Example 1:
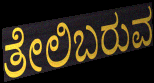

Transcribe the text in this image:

ತೇಲಿಬರುವ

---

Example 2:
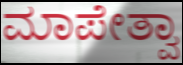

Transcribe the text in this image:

ಮಾಪೇತ್ವಾ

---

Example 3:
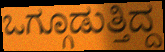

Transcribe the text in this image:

ಒಗ್ಗೂಡುತ್ತಿದ್ದ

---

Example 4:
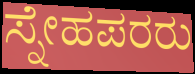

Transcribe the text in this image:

ಸ್ನೇಹಪರರು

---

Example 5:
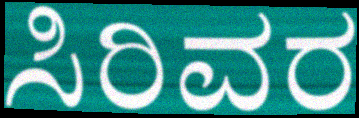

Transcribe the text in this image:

ಸಿರಿವರ